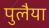
पुलैया